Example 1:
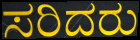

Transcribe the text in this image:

ಸರಿದರು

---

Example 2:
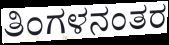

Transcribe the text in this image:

ತಿಂಗಳನಂತರ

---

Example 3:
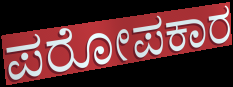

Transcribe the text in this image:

ಪರೋಪಕಾರ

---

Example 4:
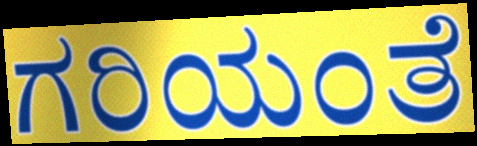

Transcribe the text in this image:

ಗರಿಯಂತೆ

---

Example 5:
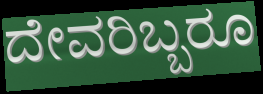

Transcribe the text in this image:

ದೇವರಿಬ್ಬರೂ